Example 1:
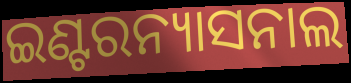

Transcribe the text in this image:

ଇଣ୍ଟରନ୍ୟାସନାଲ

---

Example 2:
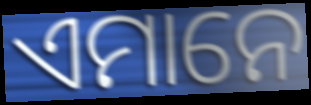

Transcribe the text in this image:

ଏମାନେ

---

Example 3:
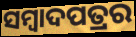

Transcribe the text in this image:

ସମ୍ବାଦପତ୍ରର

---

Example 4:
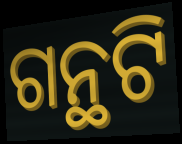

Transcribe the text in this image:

ଗନ୍ଥଟି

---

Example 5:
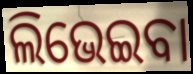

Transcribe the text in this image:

ଲିଭେଇବା